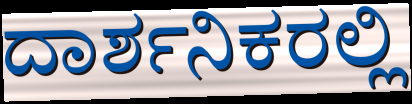
ದಾರ್ಶನಿಕರಲ್ಲಿ